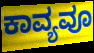
ಕಾವ್ಯವೂ